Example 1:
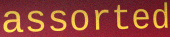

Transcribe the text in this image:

assorted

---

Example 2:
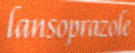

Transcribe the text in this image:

lansoprazole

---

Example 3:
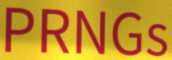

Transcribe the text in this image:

PRNGs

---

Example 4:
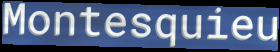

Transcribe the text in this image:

Montesquieu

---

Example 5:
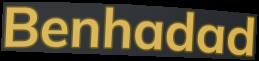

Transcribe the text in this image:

Benhadad